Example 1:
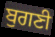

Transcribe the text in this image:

ਬੁਗਣੀ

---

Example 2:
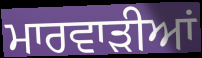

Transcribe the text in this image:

ਮਾਰਵਾੜੀਆਂ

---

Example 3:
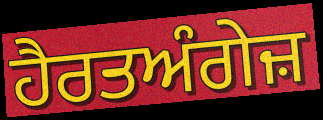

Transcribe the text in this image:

ਹੈਰਤਅੰਗੇਜ਼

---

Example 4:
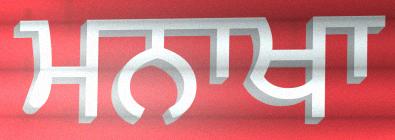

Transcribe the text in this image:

ਮਨਾਖਾ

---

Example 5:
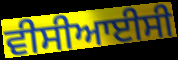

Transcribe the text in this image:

ਵੀਸੀਆਈਸੀ